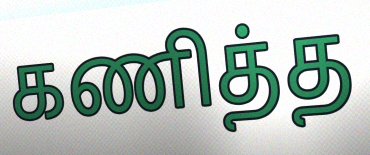
கணித்த